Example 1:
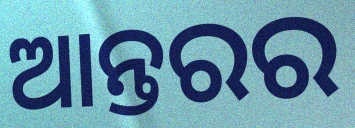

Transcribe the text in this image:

ଆନ୍ତରର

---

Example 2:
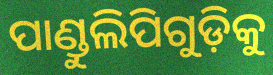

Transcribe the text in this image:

ପାଣ୍ଡୁଲିପିଗୁଡ଼ିକୁ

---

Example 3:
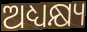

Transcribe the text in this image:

ଅଧ୍ୟକ୍ଷ୍ୟ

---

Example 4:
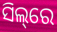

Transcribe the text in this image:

ସିଲ୍‌ରେ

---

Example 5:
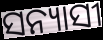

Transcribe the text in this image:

ସନ୍ୟାସୀ